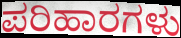
ಪರಿಹಾರಗಳು